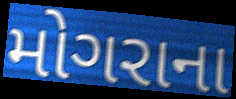
મોગરાના